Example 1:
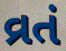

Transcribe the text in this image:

વ્રતં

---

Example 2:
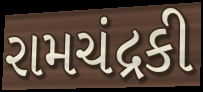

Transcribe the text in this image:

રામચંદ્રકી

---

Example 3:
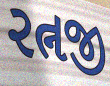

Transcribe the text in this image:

રત્નજી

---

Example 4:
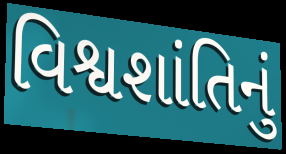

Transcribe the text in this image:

વિશ્વશાંતિનું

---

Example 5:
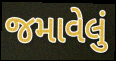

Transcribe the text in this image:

જમાવેલું